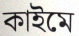
কাইমে